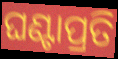
ଘଣ୍ଟାପ୍ରତି